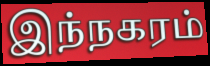
இந்நகரம்